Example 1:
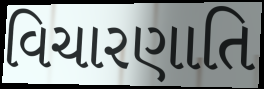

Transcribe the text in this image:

વિચારણાતિ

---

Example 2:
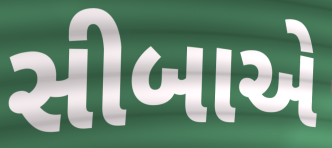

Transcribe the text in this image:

સીબાએ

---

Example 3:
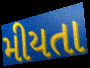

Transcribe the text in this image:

મીયતા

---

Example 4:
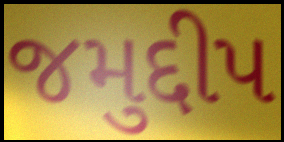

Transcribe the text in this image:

જમુદ્દીપ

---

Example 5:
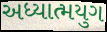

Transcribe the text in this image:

અધ્યાત્મયુગ